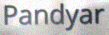
Pandyar